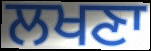
ਲਖਣਾ